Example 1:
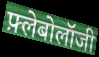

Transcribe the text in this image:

फ़्लेबोलॉजी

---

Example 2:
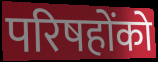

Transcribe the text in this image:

परिषहोंको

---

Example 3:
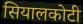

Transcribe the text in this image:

सियालकोटी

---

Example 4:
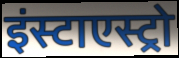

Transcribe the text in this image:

इंस्टाएस्ट्रो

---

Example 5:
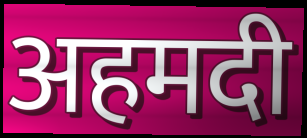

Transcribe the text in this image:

अहमदी